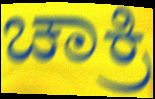
ಚಾಕ್ರಿ